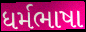
ધર્મભાષા